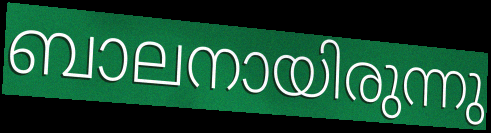
ബാലനായിരുന്നു